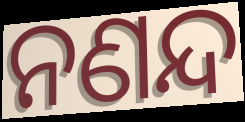
ନଣନ୍ଦ